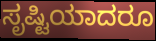
ಸೃಷ್ಟಿಯಾದರೂ